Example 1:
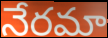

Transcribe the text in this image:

నేరమా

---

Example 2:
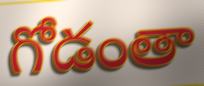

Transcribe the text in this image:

గోడంతా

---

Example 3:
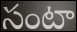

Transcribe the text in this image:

సంటా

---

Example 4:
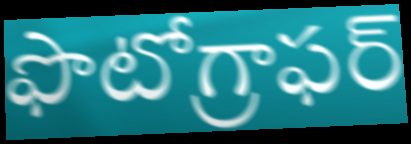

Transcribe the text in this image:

ఫొటోగ్రాఫర్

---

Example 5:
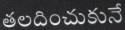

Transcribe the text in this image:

తలదించుకునే